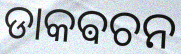
ଡାକଵଚନ